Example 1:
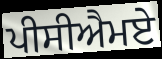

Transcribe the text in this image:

ਪੀਸੀਐਮਏ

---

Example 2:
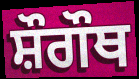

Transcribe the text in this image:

ਸ਼ੌਗੌਥ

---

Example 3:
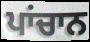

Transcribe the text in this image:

ਪਾਂਚਾਨ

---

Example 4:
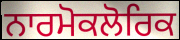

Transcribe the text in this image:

ਨਾਰਮੋਕਲੋਰਿਕ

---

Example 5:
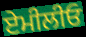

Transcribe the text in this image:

ਏਮੀਲੀਓ